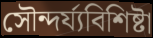
সৌন্দর্য্যবিশিষ্টা